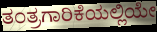
ತಂತ್ರಗಾರಿಕೆಯಲ್ಲಿಯೇ